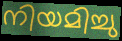
നിയമിച്ചു